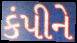
કંપીને